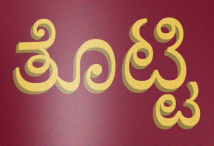
ತೊಟ್ಟಿ